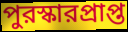
পুরস্কারপ্রাপ্ত